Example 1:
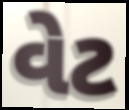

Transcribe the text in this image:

વેટ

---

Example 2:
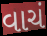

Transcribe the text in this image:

વાચં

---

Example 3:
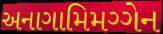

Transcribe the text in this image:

અનાગામિમગ્ગેન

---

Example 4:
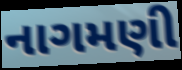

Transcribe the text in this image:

નાગમણી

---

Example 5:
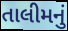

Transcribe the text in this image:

તાલીમનું